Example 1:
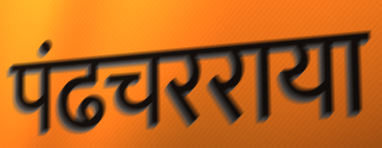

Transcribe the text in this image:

पंढचरराया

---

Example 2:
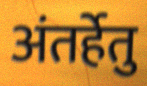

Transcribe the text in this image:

अंतर्हेतु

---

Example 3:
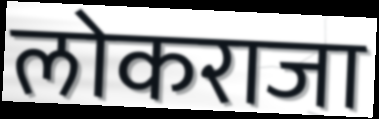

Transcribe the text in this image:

लोकराजा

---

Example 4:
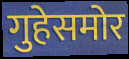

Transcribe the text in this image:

गुहेसमोर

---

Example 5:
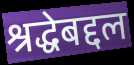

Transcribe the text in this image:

श्रद्धेबद्दल